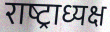
राष्ट्राध्यक्ष